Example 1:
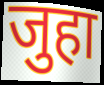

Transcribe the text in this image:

जुहा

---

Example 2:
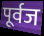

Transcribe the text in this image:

पूर्वज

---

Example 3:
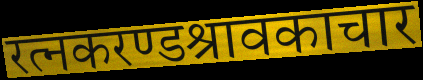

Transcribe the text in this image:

रत्नकरण्डश्रावकाचार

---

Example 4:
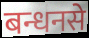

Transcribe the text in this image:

बन्धनसे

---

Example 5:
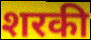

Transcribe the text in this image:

शरकी